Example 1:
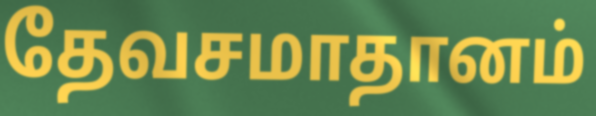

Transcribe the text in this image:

தேவசமாதானம்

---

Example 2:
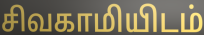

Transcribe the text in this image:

சிவகாமியிடம்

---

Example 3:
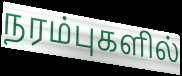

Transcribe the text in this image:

நரம்புகளில்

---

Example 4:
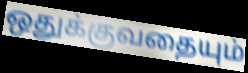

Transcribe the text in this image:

ஒதுக்குவதையும்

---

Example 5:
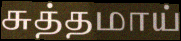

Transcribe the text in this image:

சுத்தமாய்